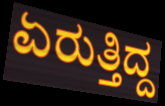
ಏರುತ್ತಿದ್ದ